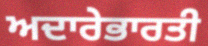
ਅਦਾਰੇਭਾਰਤੀ